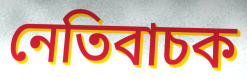
নেতিবাচক